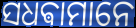
ସଧଵାମାନେ